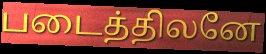
படைத்திலனே